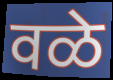
वळे